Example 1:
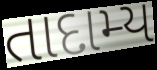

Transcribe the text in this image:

તાદામ્ય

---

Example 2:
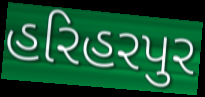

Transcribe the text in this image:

હરિહરપુર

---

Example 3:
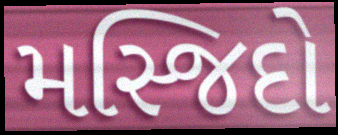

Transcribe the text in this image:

મસ્જિદો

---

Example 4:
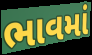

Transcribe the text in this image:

ભાવમાં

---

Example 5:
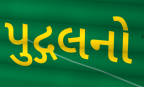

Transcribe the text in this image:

પુદ્ગલનો